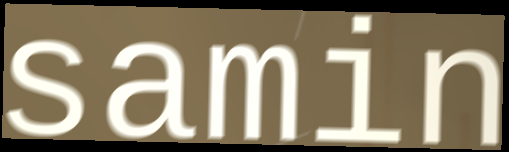
samin